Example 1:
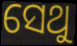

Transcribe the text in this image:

ସେଥୁ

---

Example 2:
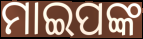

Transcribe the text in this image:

ମାଇପଙ୍କ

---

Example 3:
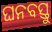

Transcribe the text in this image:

ଘନବସ୍ତୁ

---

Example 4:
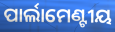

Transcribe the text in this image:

ପାର୍ଲାମେଣ୍ଟୀୟ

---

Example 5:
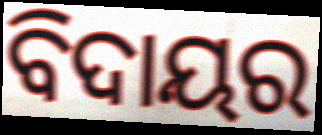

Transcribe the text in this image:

ବିଦାୟର